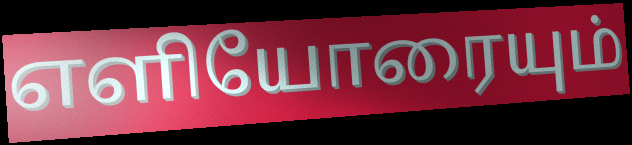
எளியோரையும்